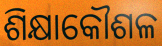
ଶିକ୍ଷାକୌଶଳ